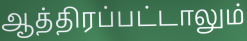
ஆத்திரப்பட்டாலும்